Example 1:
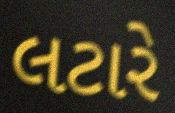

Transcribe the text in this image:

લટારે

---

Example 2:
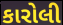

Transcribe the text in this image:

કારોલી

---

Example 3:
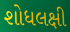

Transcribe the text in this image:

શોધલક્ષી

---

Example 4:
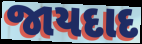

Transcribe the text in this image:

જાયદાદ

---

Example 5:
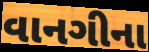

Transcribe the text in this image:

વાનગીના